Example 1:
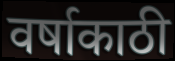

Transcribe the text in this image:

वर्षाकाठी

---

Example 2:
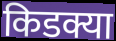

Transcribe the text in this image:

किडक्या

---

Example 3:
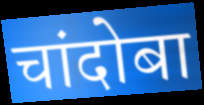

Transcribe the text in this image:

चांदोबा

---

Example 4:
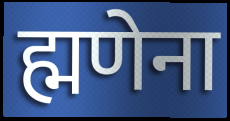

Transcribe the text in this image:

ह्मणेना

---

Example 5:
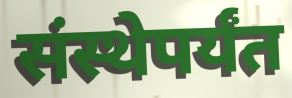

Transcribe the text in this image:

संस्थेपर्यंत